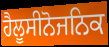
ਹੈਲੂਸੀਨੋਜਨਿਕ